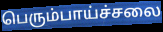
பெரும்பாய்ச்சலை